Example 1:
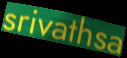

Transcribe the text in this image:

srivathsa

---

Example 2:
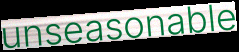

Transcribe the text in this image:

unseasonable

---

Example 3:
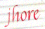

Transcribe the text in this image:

jhore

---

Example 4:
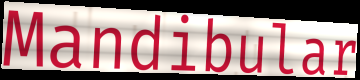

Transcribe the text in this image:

Mandibular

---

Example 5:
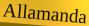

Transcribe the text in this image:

Allamanda